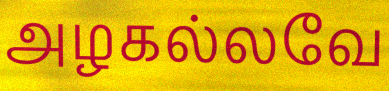
அழகல்லவே